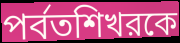
পর্বতশিখরকে